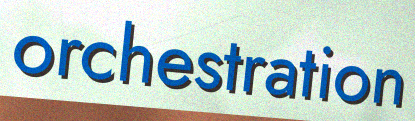
orchestration